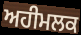
ਅਹੀਮਲਕ